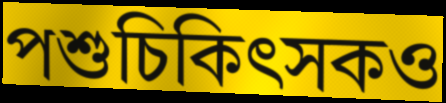
পশুচিকিৎসকও